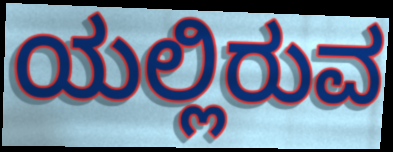
ಯಲ್ಲಿರುವ